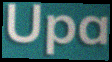
Upa